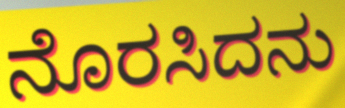
ನೊರಸಿದನು